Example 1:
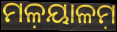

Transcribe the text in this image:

ମଳ଼ୟାଳମ଼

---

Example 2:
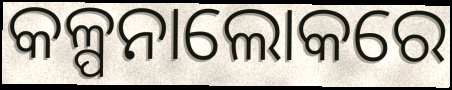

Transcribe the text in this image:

କଳ୍ପନାଲୋକରେ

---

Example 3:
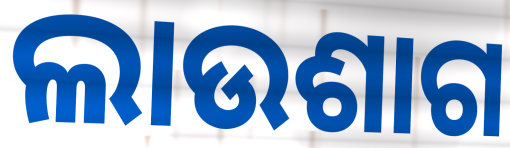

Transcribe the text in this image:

ଲାଉଶାଗ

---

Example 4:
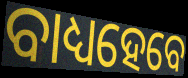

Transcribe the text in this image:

ବାଧ୍ୟହେବେ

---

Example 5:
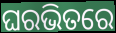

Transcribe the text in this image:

ଘରଭିତରେ